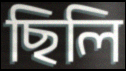
ছিলি